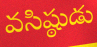
వసిష్ఠుడు